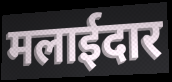
मलाईदार